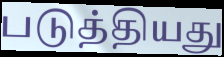
படுத்தியது